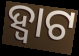
ହ୍ଵାଟ